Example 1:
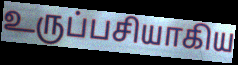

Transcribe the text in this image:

உருப்பசியாகிய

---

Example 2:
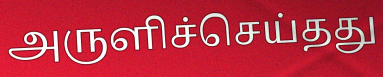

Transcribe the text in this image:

அருளிச்செய்தது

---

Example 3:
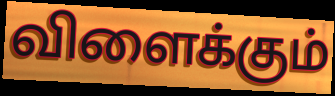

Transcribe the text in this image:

விளைக்கும்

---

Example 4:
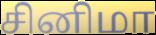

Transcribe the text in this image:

சினிமா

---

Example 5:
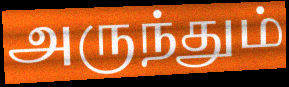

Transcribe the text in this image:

அருந்தும்